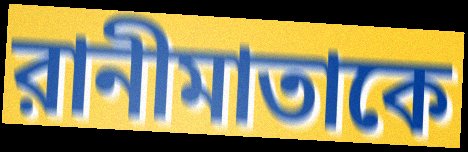
রানীমাতাকে